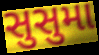
સુસુમા